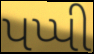
પપ્પી